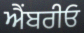
ਐਂਬਰੀਓ